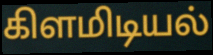
கிளமிடியல்